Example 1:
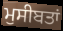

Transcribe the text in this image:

ਮੁਸੀਬਤਾਂ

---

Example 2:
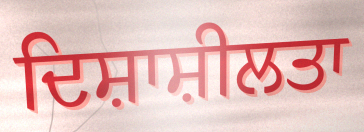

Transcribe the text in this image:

ਦਿਸ਼ਾਸ਼ੀਲਤਾ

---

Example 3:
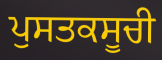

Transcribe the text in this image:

ਪੁਸਤਕਸੂਚੀ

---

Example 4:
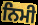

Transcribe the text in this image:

ਨਿਮੀ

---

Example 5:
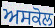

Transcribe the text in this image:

ਅਸਕੋਲ